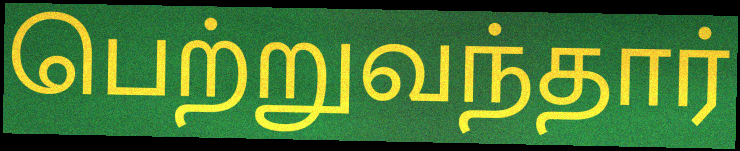
பெற்றுவந்தார்